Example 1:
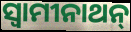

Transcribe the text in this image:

ସ୍ବାମୀନାଥନ୍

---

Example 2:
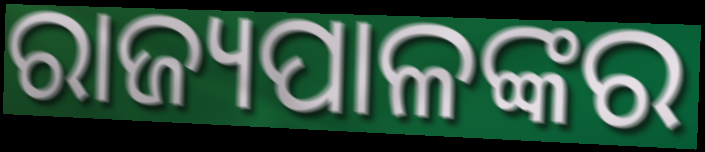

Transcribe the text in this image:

ରାଜ୍ୟପାଳଙ୍କର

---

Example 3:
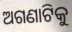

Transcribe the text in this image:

ଅଗଣାଟିକୁ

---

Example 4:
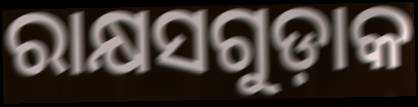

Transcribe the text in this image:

ରାକ୍ଷସଗୁଡ଼ାକ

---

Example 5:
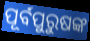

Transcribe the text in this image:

ପୂର୍ବପୁରୁଷଙ୍କ